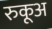
रुकूअ